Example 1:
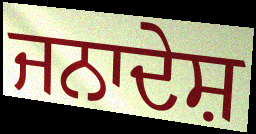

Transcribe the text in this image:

ਜਨਾਦੇਸ਼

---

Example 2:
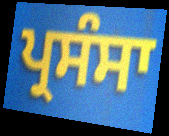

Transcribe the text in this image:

ਪ੍ਰਸੰਸਾ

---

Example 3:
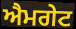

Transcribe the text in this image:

ਐਮਗੇਟ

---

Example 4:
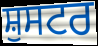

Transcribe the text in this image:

ਸ਼ੁਸਟਰ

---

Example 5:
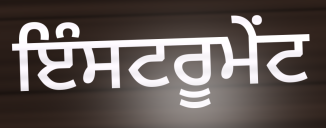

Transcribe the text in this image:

ਇੰਸਟਰੂਮੇਂਟ